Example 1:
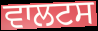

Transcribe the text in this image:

ਵਾਲਟਸ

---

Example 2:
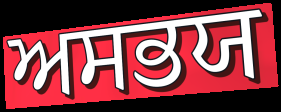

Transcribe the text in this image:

ਅਸਭਯ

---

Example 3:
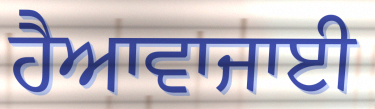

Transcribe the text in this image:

ਹੈਆਵਾਜਾਈ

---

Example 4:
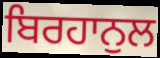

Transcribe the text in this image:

ਬਿਰਹਾਨੁਲ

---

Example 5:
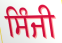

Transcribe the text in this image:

ਸਿੰਜੀ